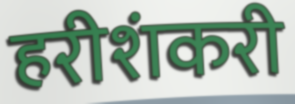
हरीशंकरी